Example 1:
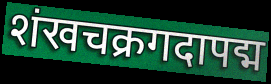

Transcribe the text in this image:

शंखचक्रगदापद्म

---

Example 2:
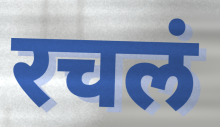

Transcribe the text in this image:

रचलं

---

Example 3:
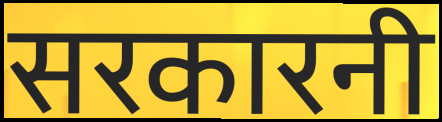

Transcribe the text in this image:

सरकारनी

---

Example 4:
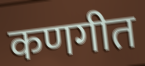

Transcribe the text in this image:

कणगीत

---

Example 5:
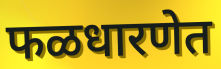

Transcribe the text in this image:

फळधारणेत